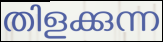
തിളക്കുന്ന